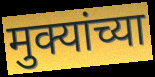
मुक्यांच्या